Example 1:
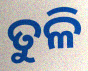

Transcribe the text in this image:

ତୁଳି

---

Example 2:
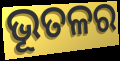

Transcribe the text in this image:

ଭୂତଳର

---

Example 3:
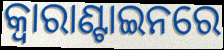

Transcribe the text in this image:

କ୍ବାରାଣ୍ଟାଇନରେ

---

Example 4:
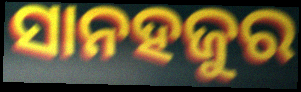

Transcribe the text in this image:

ସାନହଜୁର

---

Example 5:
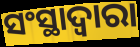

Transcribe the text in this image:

ସଂସ୍ଥାଦ୍ୱାରା